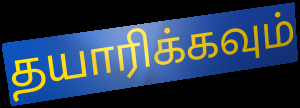
தயாரிக்கவும்